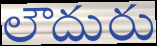
లౌదురు